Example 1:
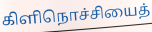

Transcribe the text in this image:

கிளிநொச்சியைத்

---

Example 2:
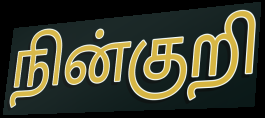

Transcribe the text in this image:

நின்குறி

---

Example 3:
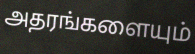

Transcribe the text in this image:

அதரங்களையும்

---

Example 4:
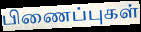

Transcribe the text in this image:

பிணைப்புகள்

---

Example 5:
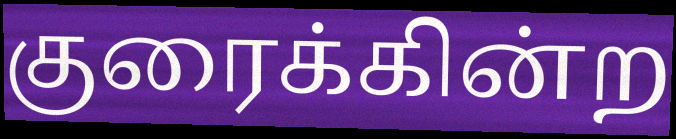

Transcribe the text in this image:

குரைக்கின்ற